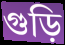
গুড়ি